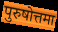
पुरुषोत्तमा